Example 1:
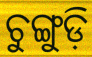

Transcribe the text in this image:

ଚୁଙ୍ଗୁଡ଼ି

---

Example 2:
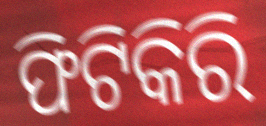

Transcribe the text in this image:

ଫିଟିକିରି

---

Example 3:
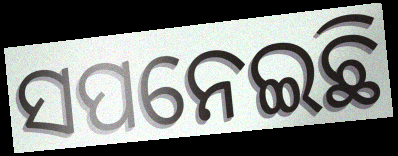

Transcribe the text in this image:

ସପନେଇଛି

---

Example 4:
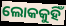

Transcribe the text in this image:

ଲୋକକୁହିଁ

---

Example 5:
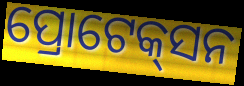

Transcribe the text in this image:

ପ୍ରୋଟେକ୍‌ସନ